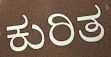
ಕುರಿತ